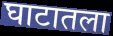
घाटातला